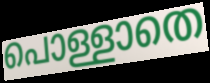
പൊള്ളാതെ